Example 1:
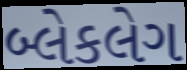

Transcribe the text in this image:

બ્લેકલેગ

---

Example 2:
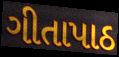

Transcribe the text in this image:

ગીતાપાઠ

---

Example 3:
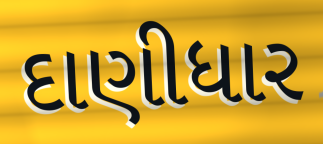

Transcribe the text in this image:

દાણીધાર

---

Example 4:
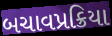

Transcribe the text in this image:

બચાવપ્રક્રિયા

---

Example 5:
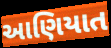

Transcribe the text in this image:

આણિયાત